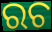
ରଚ